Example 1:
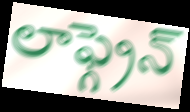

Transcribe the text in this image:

లాఫ్గ్రెన్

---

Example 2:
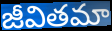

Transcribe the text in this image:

జీవితమా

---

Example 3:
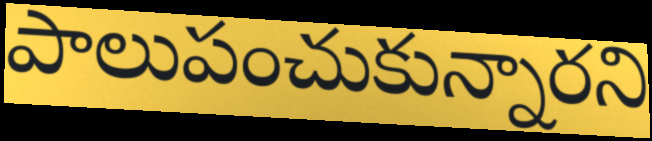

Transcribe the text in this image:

పాలుపంచుకున్నారని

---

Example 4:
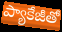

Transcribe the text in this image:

ప్యాకేజీతో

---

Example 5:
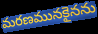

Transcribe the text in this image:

మరణమునకైనను